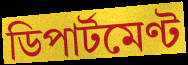
ডিপাৰ্টমেণ্ট